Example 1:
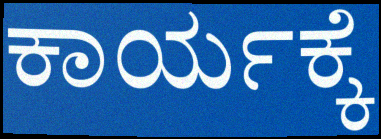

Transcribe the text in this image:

ಕಾರ್ಯಕ್ಕೆ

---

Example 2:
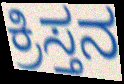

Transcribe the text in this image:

ಕ್ರಿಸ್ತನ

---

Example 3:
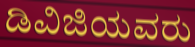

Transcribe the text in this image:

ಡಿವಿಜಿಯವರು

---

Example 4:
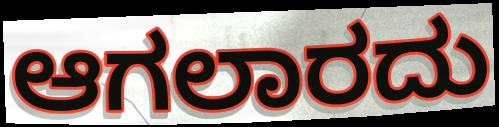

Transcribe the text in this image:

ಆಗಲಾರದು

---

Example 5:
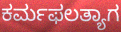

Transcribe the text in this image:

ಕರ್ಮಫಲತ್ಯಾಗ